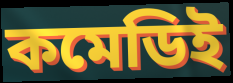
কমেডিই